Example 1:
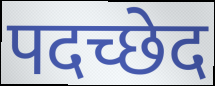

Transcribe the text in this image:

पदच्छेद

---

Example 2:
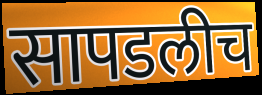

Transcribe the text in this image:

सापडलीच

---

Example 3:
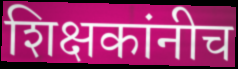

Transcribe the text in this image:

शिक्षकांनीच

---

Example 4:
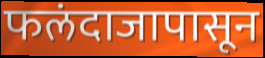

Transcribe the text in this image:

फलंदाजापासून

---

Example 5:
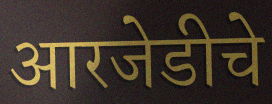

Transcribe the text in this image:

आरजेडीचे